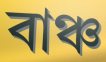
বাঞ্চ